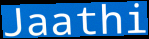
Jaathi